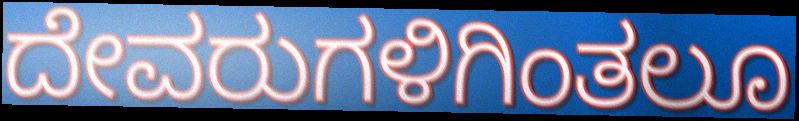
ದೇವರುಗಳಿಗಿಂತಲೂ